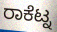
ರಾಕೆಟ್ನ